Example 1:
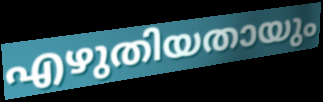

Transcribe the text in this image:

എഴുതിയതായും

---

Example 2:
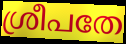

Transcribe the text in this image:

ശ്രീപതേ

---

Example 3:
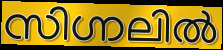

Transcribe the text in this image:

സിഗ്നലിൽ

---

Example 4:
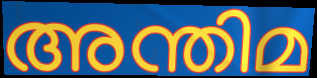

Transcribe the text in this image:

അന്തിമ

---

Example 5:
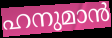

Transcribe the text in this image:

ഹനുമാൻ